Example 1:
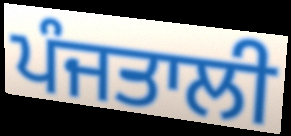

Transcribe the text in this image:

ਪੰਜਤਾਲੀ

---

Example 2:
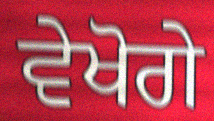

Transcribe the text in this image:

ਵੇਖੋਗੇ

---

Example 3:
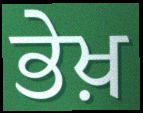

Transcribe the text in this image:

ਭੇਖ਼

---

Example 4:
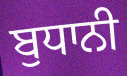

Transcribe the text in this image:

ਬੁਧਾਨੀ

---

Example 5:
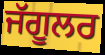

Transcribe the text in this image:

ਜੱਗੂਲਰ